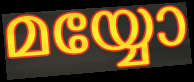
മയ്യോ